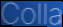
Colla